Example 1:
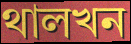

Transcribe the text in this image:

থালখন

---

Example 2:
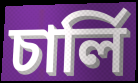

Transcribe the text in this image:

চাৰ্লি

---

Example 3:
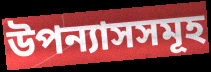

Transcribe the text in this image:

উপন্যাসসমূহ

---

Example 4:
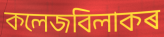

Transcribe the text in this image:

কলেজবিলাকৰ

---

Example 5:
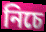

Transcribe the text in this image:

নিচে